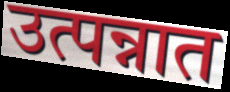
उत्पन्नात